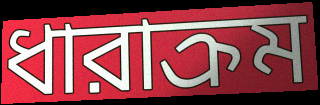
ধারাক্রম